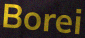
Borei